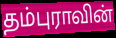
தம்புராவின்